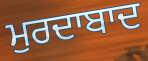
ਮੁਰਦਾਬਾਦ